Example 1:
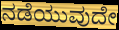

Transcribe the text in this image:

ನಡೆಯುವುದೇ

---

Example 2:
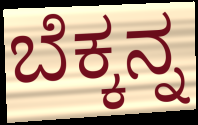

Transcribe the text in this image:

ಬೆಕ್ಕನ್ನ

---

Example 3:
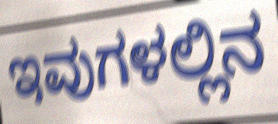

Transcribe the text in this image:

ಇವುಗಳಲ್ಲಿನ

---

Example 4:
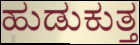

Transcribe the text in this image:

ಹುಡುಕುತ್ತ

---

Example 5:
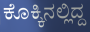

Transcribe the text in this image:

ಕೊಕ್ಕಿನಲ್ಲಿದ್ದ